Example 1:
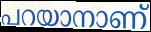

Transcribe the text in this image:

പറയാനാണ്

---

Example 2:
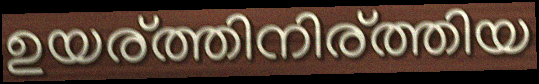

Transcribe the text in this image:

ഉയര്ത്തിനിര്ത്തിയ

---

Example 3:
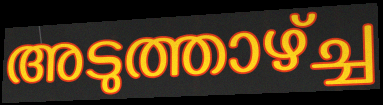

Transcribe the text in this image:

അടുത്താഴ്ച്ച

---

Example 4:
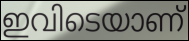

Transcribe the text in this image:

ഇവിടെയാണ്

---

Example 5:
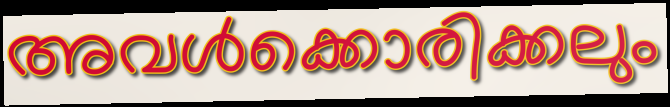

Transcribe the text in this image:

അവൾക്കൊരിക്കലും